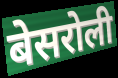
बेसरोली